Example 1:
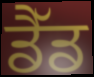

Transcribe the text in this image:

ਡੈੱਡ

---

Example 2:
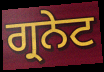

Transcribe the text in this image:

ਗ੍ਰਨੇਟ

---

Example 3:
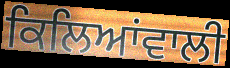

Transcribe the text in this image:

ਕਿਲਿਆਂਵਾਲੀ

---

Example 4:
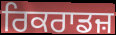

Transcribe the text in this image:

ਰਿਕਰਾਡਜ਼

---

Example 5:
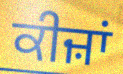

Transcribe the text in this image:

ਕੀਜ਼ਾਂ